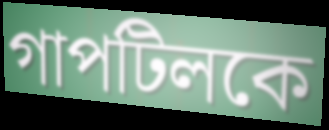
গাপটিলকে